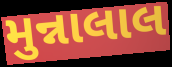
મુન્નાલાલ